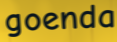
goenda